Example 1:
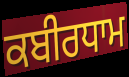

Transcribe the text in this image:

ਕਬੀਰਧਾਮ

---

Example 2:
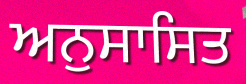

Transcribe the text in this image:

ਅਨੁਸਾਸਿਤ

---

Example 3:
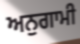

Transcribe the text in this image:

ਅਨੁਗਾਮੀ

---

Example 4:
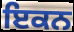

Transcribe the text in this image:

ਇਕਨ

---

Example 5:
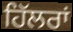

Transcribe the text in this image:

ਹਿੱਲਰਾਂ